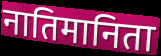
नातिमानिता